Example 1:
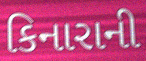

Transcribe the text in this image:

કિનારાની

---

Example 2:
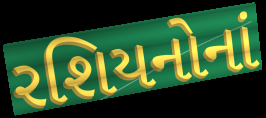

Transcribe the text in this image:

રશિયનોનાં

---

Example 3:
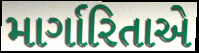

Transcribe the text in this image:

માર્ગારિતાએ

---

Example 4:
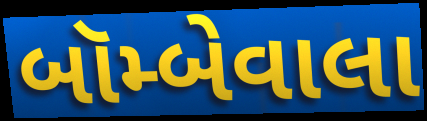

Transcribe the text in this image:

બૉમ્બેવાલા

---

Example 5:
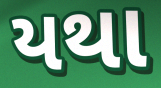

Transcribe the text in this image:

યથા